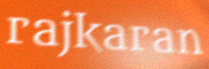
rajkaran